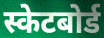
स्केटबोर्ड